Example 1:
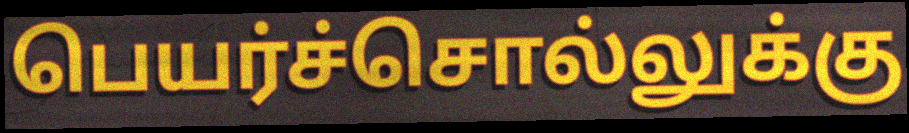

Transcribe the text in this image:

பெயர்ச்சொல்லுக்கு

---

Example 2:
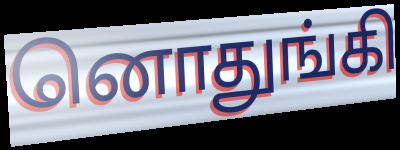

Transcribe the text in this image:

னொதுங்கி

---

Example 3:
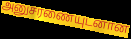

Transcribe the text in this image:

அனுசரணையுடனான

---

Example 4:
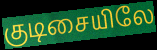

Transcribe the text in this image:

குடிசையிலே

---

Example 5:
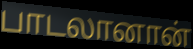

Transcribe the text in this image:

பாடலானான்